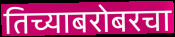
तिच्याबरोबरचा